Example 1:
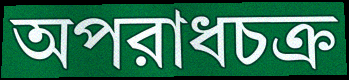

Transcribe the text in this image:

অপরাধচক্র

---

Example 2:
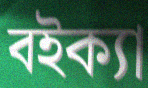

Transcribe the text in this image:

বইক্যা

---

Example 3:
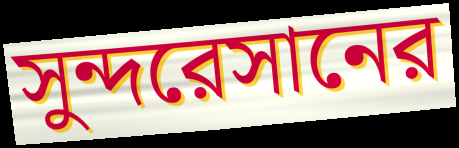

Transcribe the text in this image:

সুন্দরেসানের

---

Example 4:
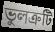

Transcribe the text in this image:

ভুলত্রুটি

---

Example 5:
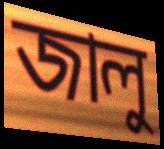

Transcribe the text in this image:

জালু